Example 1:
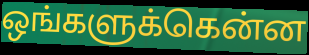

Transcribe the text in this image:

ஒங்களுக்கென்ன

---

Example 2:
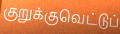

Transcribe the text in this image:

குறுக்குவெட்டுப்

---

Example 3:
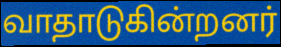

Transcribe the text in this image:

வாதாடுகின்றனர்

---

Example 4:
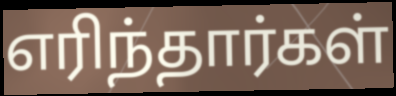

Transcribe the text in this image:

எரிந்தார்கள்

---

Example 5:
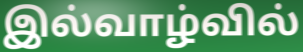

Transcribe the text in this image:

இல்வாழ்வில்